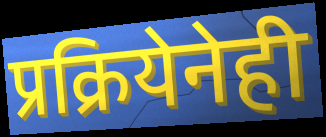
प्रक्रियेनेही